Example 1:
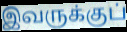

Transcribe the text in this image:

இவருக்குப்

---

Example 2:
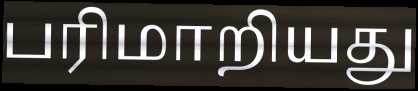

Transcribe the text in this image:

பரிமாறியது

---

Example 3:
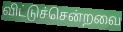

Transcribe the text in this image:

விட்டுச்சென்றவை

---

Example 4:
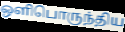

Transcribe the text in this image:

ஒளிபொருந்திய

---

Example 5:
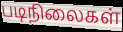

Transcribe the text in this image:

படிநிலைகள்